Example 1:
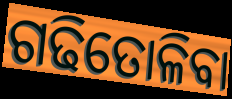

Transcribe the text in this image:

ଗଢିତୋଳିବା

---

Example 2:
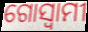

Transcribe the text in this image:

ଗୋସ୍ୱାମୀ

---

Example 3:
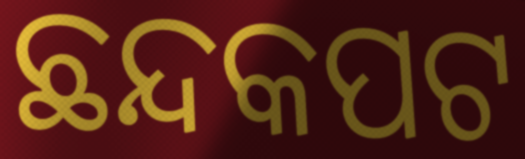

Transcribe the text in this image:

ଛନ୍ଦକପଟ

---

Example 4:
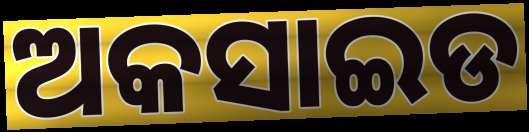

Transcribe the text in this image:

ଅକସାଇଡ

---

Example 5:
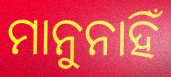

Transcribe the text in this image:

ମାନୁନାହିଁ